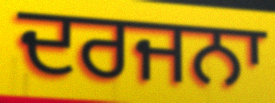
ਦਰਜਨਾ